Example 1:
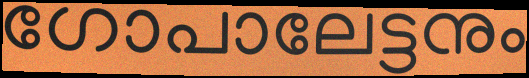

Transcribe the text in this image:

ഗോപാലേട്ടനും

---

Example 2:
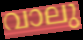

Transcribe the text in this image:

വാലു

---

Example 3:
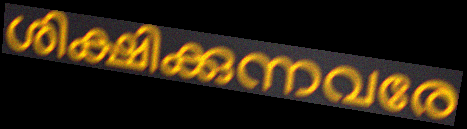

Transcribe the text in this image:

ശിക്ഷിക്കുന്നവരേ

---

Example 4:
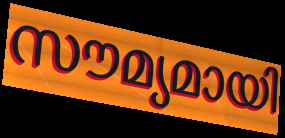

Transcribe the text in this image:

സൗമ്യമായി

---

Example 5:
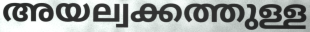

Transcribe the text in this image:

അയല്വക്കത്തുള്ള